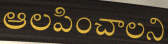
ఆలపించాలని